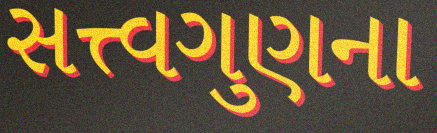
સત્ત્વગુણના